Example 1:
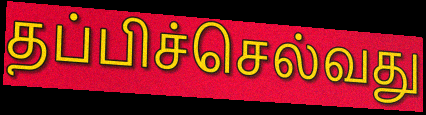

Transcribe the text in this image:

தப்பிச்செல்வது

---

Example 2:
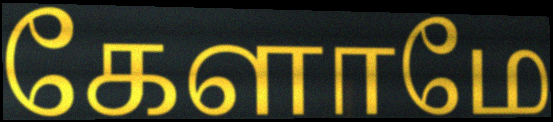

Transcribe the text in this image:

கேளாமே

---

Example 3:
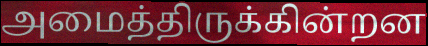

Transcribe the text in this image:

அமைத்திருக்கின்றன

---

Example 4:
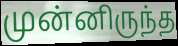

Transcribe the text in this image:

முன்னிருந்த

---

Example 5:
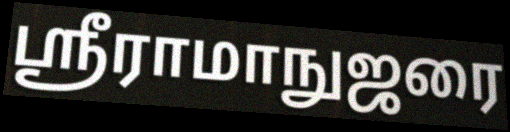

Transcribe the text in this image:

ஸ்ரீராமாநுஜரை